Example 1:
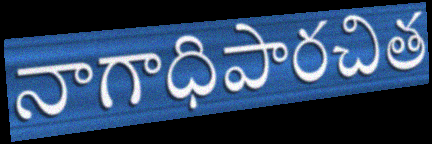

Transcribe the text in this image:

నాగాధిపారచిత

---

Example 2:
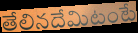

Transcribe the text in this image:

తేలినదేమిటంటే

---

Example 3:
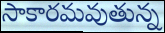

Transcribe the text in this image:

సాకారమవుతున్న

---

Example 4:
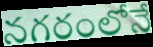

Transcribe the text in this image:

నగరంలోనే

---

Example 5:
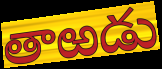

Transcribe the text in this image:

తాఱడు